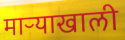
माऱ्याखाली